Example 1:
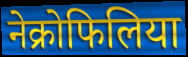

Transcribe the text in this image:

नेक्रोफिलिया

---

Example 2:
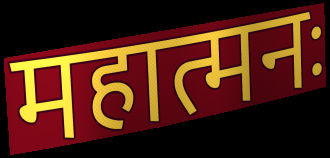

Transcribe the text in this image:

महात्मनः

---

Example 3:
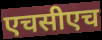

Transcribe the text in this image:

एचसीएच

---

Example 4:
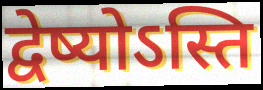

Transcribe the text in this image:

द्वेष्योऽस्ति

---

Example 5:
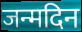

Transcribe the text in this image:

जन्‍मदिन